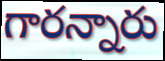
గారన్నారు